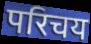
परिचय